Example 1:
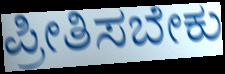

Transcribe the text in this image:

ಪ್ರೀತಿಸಬೇಕು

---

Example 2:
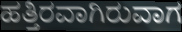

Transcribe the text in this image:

ಹತ್ತಿರವಾಗಿರುವಾಗ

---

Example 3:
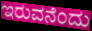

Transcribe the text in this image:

ಇರುವನೆಂದು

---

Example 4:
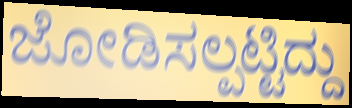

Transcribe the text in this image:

ಜೋಡಿಸಲ್ಪಟ್ಟಿದ್ದು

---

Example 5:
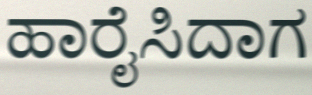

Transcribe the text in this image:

ಹಾರೈಸಿದಾಗ